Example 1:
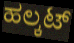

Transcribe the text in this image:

ಹಲ್ಕಟ್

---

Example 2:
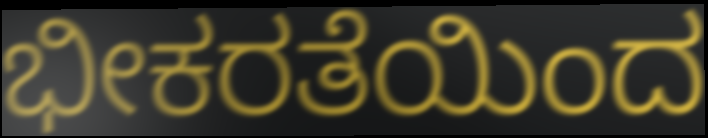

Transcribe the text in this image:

ಭೀಕರತೆಯಿಂದ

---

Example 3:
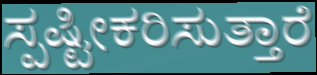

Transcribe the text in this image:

ಸ್ಪಷ್ಟೀಕರಿಸುತ್ತಾರೆ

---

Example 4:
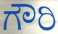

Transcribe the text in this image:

ಗೌರಿ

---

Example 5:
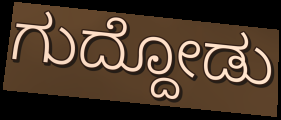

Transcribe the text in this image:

ಗುದ್ದೋಡು